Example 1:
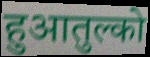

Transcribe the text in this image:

हुआतुल्को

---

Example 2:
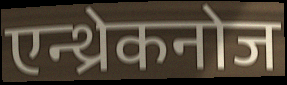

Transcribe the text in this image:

एन्थ्रेकनोज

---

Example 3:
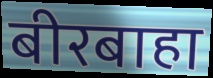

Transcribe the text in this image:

बीरबाहा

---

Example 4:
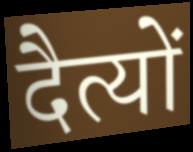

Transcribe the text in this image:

दैत्यों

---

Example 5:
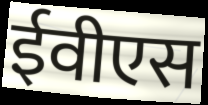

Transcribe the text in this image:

ईवीएस